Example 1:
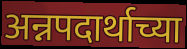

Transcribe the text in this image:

अन्नपदार्थाच्या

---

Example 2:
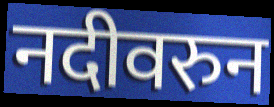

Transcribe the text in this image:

नदीवरुन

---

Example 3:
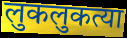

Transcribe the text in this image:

लुकलुकत्या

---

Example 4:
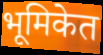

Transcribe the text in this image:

भूमिकेत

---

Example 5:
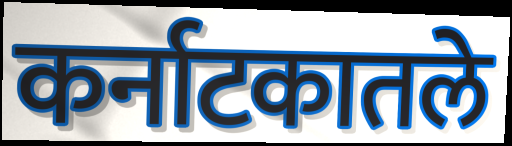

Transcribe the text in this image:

कर्नाटकातले